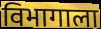
विभागाला